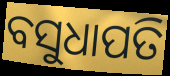
ବସୁଧାପତି